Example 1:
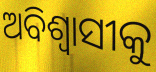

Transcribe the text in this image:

ଅବିଶ୍ୱାସୀକୁ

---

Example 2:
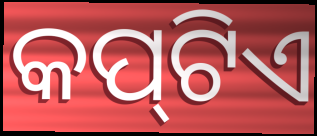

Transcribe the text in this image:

କପ୍‍ଟିଏ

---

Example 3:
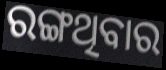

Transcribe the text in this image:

ରଙ୍ଗଥିବାର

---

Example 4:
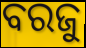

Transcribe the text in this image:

ବରଜୁ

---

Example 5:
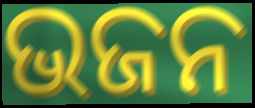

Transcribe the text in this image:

ଭଜନ